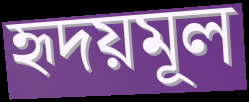
হৃদয়মূল